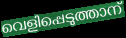
വെളിപ്പെടുത്താന്